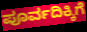
ಪೂರ್ವದಿಕ್ಕಿಗೆ